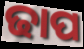
ଢାପ